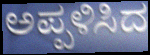
ಅಪ್ಪಳಿಸಿದ